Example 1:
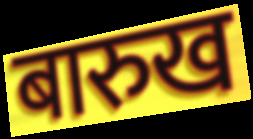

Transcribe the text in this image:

बारुख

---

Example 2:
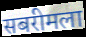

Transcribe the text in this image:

सबरीमला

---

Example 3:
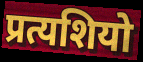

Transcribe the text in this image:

प्रत्यशियो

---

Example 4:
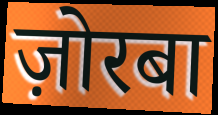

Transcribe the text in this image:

ज़ोरबा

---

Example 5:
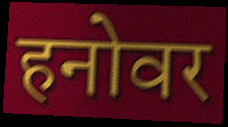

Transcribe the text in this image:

हनोवर